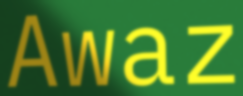
Awaz